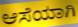
ಆಸೆಯಾಗಿ